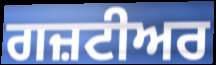
ਗਜ਼ਟੀਅਰ